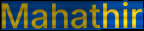
Mahathir